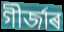
গীৰ্জাৰ